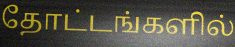
தோட்டங்களில்